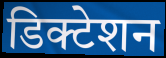
डिक्टेशन